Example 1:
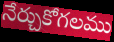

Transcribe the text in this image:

నేర్చుకోగలము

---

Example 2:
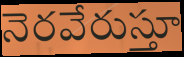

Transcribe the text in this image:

నెరవేరుస్తూ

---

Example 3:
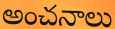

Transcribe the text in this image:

అంచనాలు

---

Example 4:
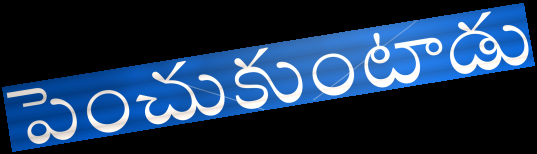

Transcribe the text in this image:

పెంచుకుంటాడు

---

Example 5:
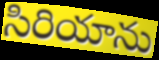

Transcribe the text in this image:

సిరియాను